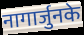
नागार्जुनके